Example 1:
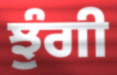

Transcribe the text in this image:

ਝੁੰਗੀ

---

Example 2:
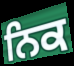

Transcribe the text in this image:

ਨਿਕ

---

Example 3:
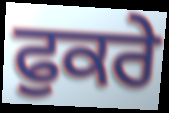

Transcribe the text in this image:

ਫੁਕਰੇ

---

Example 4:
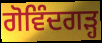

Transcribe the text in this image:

ਗੋਵਿੰਦਗੜ੍ਹ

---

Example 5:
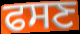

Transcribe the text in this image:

ਫਸਣ